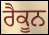
ਰੈਕੂਨ